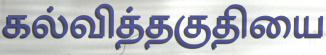
கல்வித்தகுதியை